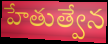
హేతుత్వేన